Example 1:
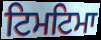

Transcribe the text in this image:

ਟਿਮਟਿਮਾ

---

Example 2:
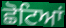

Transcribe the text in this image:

ਛੋਟਿਆਂ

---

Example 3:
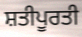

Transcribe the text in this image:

ਸ਼ਤੀਪੂਰਤੀ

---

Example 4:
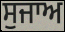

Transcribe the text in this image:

ਸੁਜਾਅ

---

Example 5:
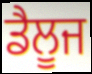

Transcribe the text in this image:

ਡੈਲੂਜ